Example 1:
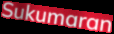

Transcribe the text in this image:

Sukumaran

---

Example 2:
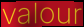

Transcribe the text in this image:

valour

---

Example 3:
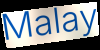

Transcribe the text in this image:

Malay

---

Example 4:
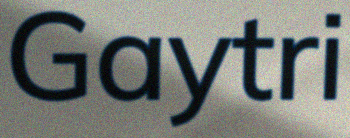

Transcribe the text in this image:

Gaytri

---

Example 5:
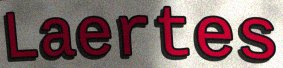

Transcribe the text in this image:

Laertes